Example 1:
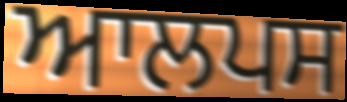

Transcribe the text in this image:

ਆਲਪਸ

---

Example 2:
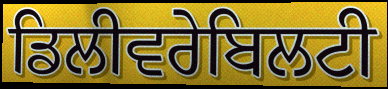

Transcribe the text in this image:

ਡਿਲੀਵਰੇਬਿਲਟੀ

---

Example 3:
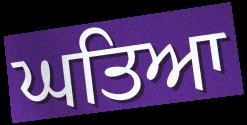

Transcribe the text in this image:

ਘਤਿਆ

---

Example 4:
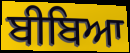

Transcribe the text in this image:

ਬੀਬਿਆ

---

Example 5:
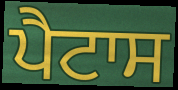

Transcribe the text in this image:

ਪੈਟਾਸ